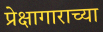
प्रेक्षागाराच्या